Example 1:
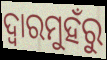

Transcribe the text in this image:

ଦ୍ଵାରମୁହଁରୁ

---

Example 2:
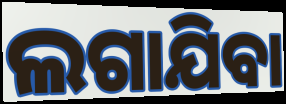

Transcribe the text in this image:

ଲଗାଯିବା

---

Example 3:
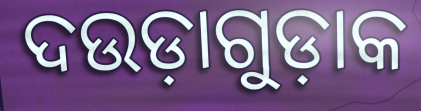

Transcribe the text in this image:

ଦଉଡ଼ାଗୁଡ଼ାକ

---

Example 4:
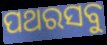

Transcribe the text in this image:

ପଥରସବୁ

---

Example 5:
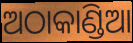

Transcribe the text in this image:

ଅଠାକାଣ୍ଡିଆ